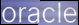
oracle